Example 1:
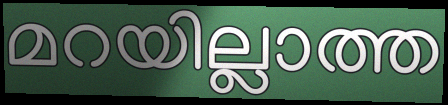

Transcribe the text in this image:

മറയില്ലാത്ത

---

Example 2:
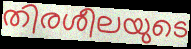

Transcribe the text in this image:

തിരശീലയുടെ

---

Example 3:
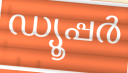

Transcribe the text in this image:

ഡ്യൂപ്പർ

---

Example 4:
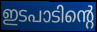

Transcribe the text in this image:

ഇടപാടിന്റെ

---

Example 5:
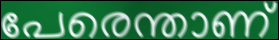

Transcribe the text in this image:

പേരെന്താണ്